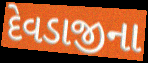
દેવડાજીના